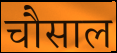
चौसाल